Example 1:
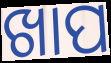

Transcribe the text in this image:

ଖାପ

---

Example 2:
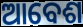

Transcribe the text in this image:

ଆବେଶ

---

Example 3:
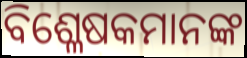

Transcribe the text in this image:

ବିଶ୍ଳେଷକମାନଙ୍କ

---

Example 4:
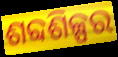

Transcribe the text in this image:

ଶବ୍ଦଶିଳ୍ପର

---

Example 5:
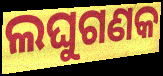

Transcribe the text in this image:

ଲଘୁଗଣକ